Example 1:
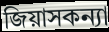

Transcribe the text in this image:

জিয়াসকন্যা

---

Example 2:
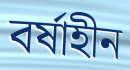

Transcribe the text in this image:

বর্ষাহীন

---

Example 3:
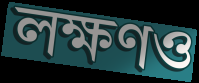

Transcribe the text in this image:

লক্ষণও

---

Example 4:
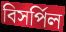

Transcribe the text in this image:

বিসর্পিল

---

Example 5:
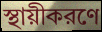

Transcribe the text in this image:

স্থায়ীকরণে